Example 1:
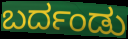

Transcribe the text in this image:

ಬರ್ದಂಡು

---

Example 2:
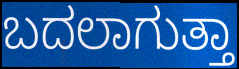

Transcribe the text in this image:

ಬದಲಾಗುತ್ತಾ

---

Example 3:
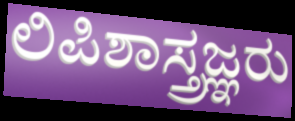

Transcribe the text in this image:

ಲಿಪಿಶಾಸ್ತ್ರಜ್ಞರು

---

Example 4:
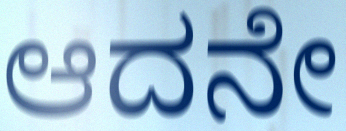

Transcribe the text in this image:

ಆದನೇ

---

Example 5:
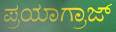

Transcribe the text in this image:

ಪ್ರಯಾಗ್ರಾಜ್